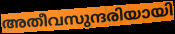
അതീവസുന്ദരിയായി